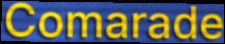
Comarade